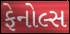
ફેનોલ્સ